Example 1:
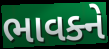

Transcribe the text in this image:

ભાવક્ને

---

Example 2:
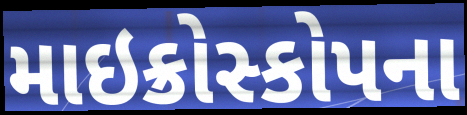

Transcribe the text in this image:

માઇક્રોસ્કોપના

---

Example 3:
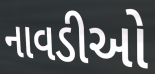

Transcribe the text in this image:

નાવડીઓ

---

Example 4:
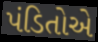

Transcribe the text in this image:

પંડિતોએ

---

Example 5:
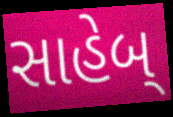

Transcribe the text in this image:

સાહેબ્